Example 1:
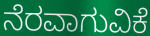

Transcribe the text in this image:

ನೆರವಾಗುವಿಕೆ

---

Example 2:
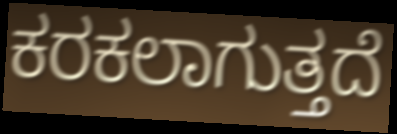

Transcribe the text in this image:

ಕರಕಲಾಗುತ್ತದೆ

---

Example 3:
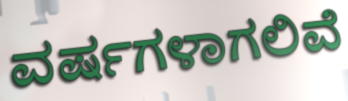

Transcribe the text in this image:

ವರ್ಷಗಳಾಗಲಿವೆ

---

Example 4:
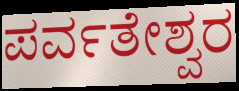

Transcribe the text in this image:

ಪರ್ವತೇಶ್ವರ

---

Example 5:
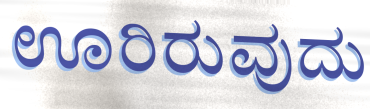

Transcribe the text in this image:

ಊರಿರುವುದು